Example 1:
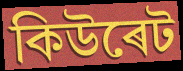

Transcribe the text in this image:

কিউৰেট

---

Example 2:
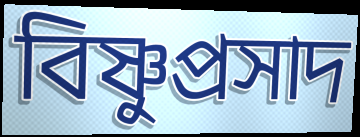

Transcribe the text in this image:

বিষ্ণুপ্ৰসাদ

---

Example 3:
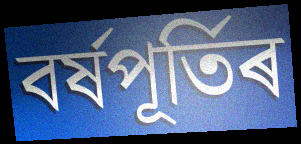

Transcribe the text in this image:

বৰ্ষপূৰ্তিৰ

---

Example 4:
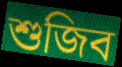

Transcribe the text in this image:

শুজিব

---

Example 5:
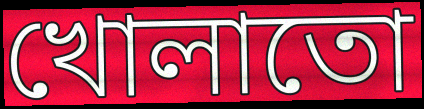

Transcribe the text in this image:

খোলাতো